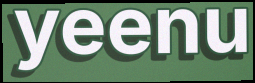
yeenu